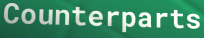
Counterparts